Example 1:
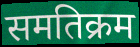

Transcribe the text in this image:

समतिक्रम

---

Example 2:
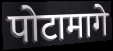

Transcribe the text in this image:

पोटामागे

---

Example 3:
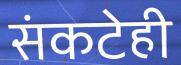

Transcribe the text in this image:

संकटेही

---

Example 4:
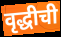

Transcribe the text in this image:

वृद्धीची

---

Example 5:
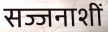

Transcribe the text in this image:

सज्जनाशीं